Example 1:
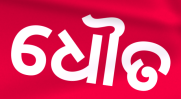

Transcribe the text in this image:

ଧୌତ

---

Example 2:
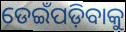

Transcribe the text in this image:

ଡେଇଁପଡ଼ିବାକୁ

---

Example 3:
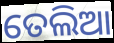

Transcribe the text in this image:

ତେଲିଆ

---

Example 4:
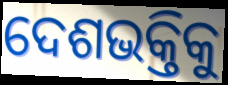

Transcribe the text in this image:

ଦେଶଭକ୍ତିକୁ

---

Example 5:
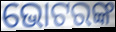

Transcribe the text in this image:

ଭୋଟରଙ୍କ